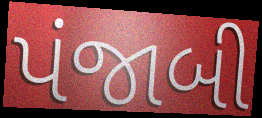
પંજાબી